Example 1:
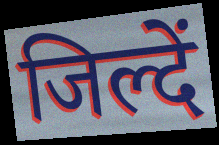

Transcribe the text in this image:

जिल्दें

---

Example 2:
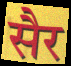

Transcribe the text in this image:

सैर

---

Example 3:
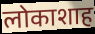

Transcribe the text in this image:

लोकाशाह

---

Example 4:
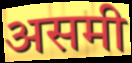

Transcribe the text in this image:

असमी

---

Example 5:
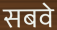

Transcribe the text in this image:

सबवे